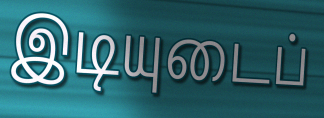
இடியுடைப்